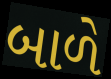
બાળે